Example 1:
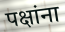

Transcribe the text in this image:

पक्षांना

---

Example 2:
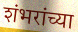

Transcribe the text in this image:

शंभरांच्या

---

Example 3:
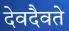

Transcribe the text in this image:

देवदैवते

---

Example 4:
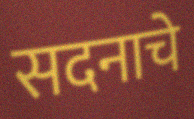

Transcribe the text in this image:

सदनाचे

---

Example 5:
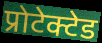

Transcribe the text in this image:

प्रोटेक्टेड